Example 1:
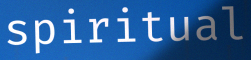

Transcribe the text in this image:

spiritual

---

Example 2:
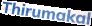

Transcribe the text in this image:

Thirumakal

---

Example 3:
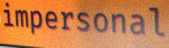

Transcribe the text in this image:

impersonal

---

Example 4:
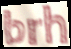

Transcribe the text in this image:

brh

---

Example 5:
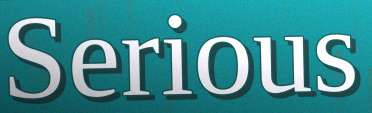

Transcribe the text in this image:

Serious